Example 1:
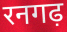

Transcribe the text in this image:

रनगढ़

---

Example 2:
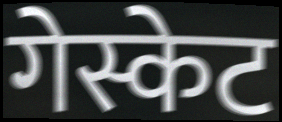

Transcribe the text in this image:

गेस्केट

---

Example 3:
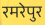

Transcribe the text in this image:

रमरेपुर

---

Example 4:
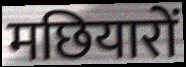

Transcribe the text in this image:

मछियारों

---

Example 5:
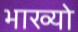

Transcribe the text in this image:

भाख्यो